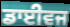
ਡਾਈਵਜ